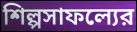
শিল্পসাফল্যের